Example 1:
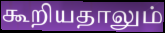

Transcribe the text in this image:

கூறியதாலும்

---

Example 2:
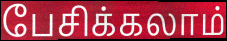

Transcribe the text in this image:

பேசிக்கலாம்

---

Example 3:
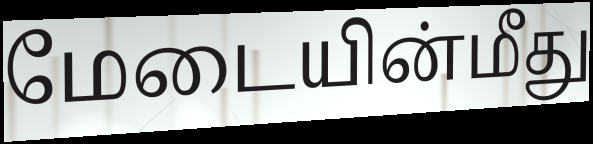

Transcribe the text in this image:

மேடையின்மீது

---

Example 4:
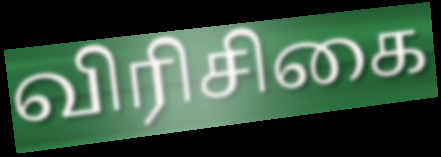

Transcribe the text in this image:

விரிசிகை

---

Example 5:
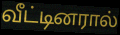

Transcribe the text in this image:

வீட்டினரால்